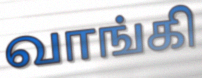
வாங்கி